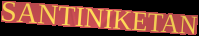
SANTINIKETAN